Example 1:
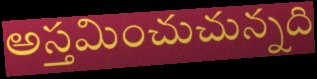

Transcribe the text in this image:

అస్తమించుచున్నది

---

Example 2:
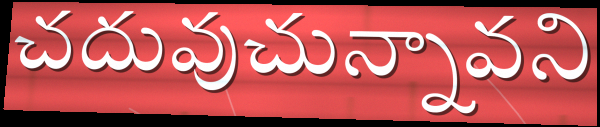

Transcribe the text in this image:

చదువుచున్నావని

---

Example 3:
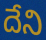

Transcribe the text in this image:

దేని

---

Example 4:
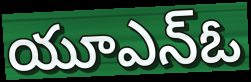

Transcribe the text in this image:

యూఎన్ఓ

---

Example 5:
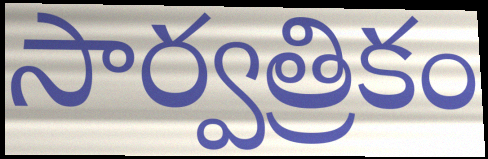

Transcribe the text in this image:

సార్వత్రికం